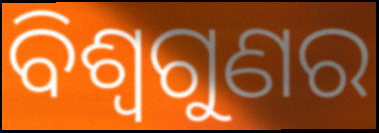
ବିଶ୍ୱଗୁଣର